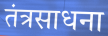
तंत्रसाधना